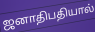
ஜனாதிபதியால்